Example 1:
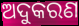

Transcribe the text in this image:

ଅଦୁକରଣ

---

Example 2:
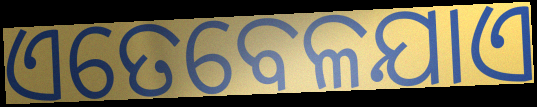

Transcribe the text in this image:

ଏତେବେଳଯାଏ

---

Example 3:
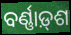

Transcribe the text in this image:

ବର୍ଣ୍ଣାଡ଼୍‌ଶ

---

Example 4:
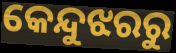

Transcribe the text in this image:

କେନ୍ଦୁଝରରୁ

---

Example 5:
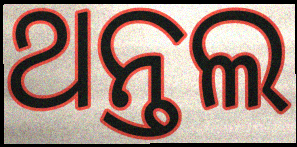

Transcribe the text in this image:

ଥନ୍ତଲ